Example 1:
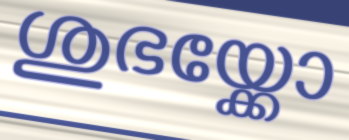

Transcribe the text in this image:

ശുഭയ്ക്കോ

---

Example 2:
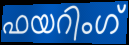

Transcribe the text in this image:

ഫയറിംഗ്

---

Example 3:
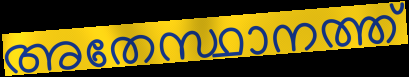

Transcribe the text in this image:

അതേസ്ഥാനത്ത്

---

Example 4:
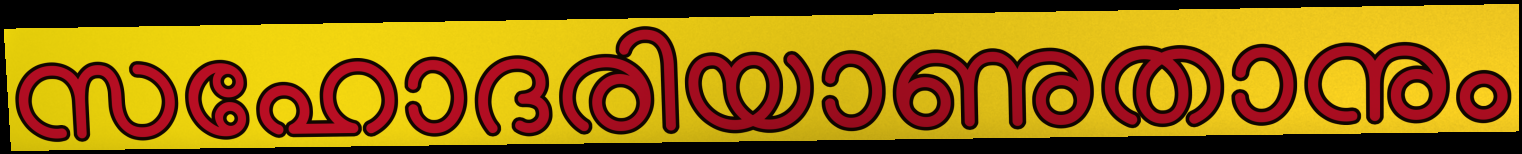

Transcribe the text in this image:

സഹോദരിയാണുതാനും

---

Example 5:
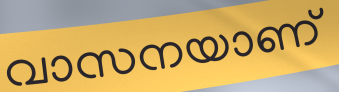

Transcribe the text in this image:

വാസനയാണ്